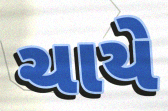
ચાયે